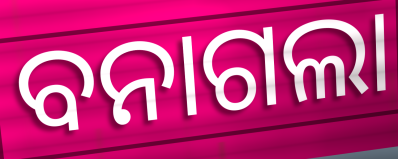
ବନାଗଲା